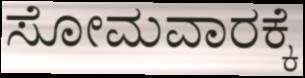
ಸೋಮವಾರಕ್ಕೆ